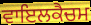
ਵਾਇਲਕੈਚਮ